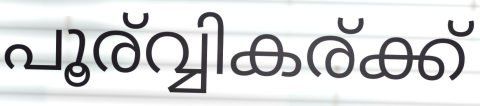
പൂര്വ്വികര്ക്ക്